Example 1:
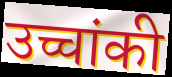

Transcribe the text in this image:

उच्चांकी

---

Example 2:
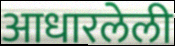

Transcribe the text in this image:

आधारलेली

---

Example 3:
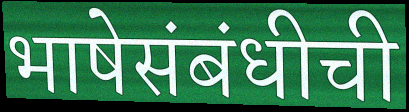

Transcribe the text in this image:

भाषेसंबंधीची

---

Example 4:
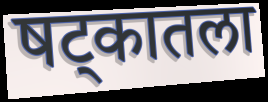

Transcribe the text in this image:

षट्कातला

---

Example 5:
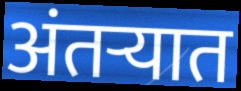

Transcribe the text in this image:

अंतऱ्यात